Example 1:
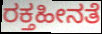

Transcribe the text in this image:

ರಕ್ತಹೀನತೆ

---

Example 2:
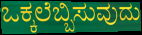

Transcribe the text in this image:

ಒಕ್ಕಲೆಬ್ಬಿಸುವುದು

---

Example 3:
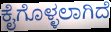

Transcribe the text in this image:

ಕೈಗೊಳ್ಳಲಾಗಿದೆ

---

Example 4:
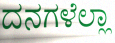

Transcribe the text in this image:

ದನಗಳೆಲ್ಲಾ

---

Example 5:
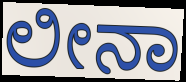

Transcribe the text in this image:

ಲೀನಾ